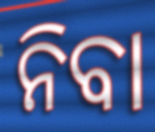
ନିବା